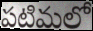
పటిమలో